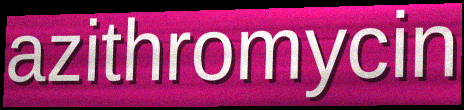
azithromycin